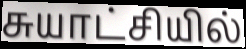
சுயாட்சியில்